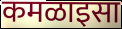
कमळाइसा